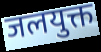
जलयुक्त